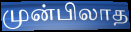
முன்பிலாத